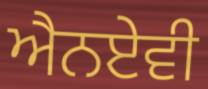
ਐਨਏਵੀ